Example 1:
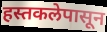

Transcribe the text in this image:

हस्तकलेपासून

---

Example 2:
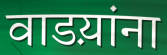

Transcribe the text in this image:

वाडय़ांना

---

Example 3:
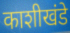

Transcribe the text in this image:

काशीखंडे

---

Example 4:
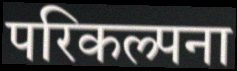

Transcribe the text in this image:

परिकल्पना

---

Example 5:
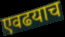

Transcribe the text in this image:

एवढयाच